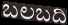
ಬಲಬದಿ